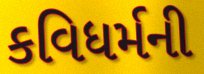
કવિધર્મની